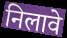
निलावे